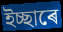
ইচ্ছাৰে